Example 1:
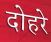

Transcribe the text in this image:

दोहरे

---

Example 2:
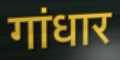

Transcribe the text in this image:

गांधार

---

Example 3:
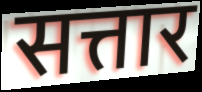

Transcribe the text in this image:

सत्तार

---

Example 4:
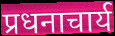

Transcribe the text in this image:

प्रधनाचार्य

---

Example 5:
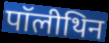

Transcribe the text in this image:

पॉलीथिन